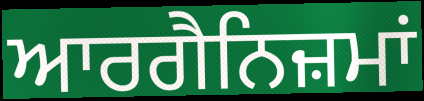
ਆਰਗੈਨਿਜ਼ਮਾਂ